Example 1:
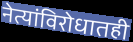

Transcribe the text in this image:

नेत्यांविरोधातही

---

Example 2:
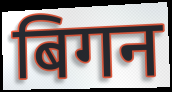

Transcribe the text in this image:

बिगन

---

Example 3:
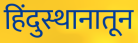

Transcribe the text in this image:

हिंदुस्थानातून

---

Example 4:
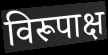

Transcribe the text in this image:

विरूपाक्ष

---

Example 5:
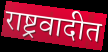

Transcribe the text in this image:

राष्ट्रवादीत